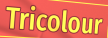
Tricolour